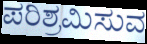
ಪರಿಶ್ರಮಿಸುವ